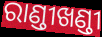
ରାଣ୍ଡୀଖଣ୍ଡୀ